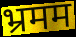
भ्रमम